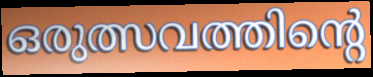
ഒരുത്സവത്തിന്റെ